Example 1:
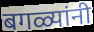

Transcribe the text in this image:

बगळ्यांनी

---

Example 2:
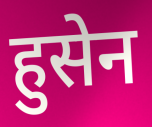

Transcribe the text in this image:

हुसेन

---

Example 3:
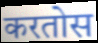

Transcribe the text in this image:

करतोस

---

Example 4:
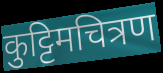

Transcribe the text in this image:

कुट्टिमचित्रण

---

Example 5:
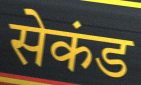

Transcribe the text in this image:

सेकंड